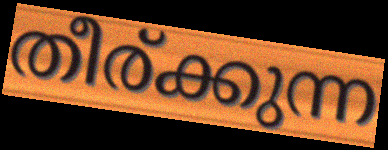
തീര്ക്കുന്ന